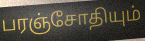
பரஞ்சோதியும்